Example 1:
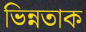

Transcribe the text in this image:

ভিন্নতাক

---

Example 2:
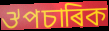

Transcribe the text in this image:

ঔপচাৰিক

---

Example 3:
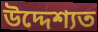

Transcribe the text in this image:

উদ্দেশ্যত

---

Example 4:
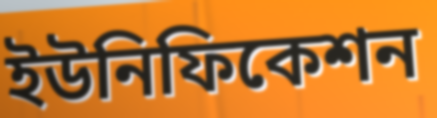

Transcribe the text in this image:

ইউনিফিকেশন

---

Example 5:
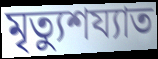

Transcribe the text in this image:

মৃত্যুশয্যাত